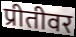
प्रीतीवर